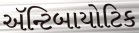
ઍન્ટિબાયોટિક